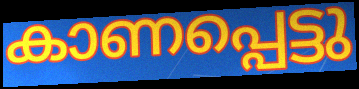
കാണപ്പെട്ടു